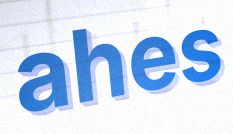
ahes